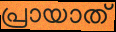
പ്രായാത്